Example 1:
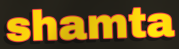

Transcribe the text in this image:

shamta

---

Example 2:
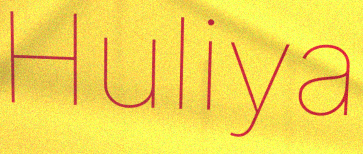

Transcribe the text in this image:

Huliya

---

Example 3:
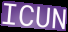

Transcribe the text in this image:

ICUN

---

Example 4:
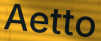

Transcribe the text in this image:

Aetto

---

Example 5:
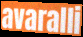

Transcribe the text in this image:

avaralli